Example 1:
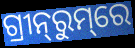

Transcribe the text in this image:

ଗ୍ରୀନ୍‌ରୁମ୍‌ରେ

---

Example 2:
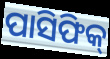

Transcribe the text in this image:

ପାସିଫିକ୍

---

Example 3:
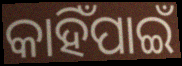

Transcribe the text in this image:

କାହିଁପାଇଁ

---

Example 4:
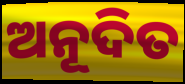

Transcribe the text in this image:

ଅନୂଦିତ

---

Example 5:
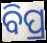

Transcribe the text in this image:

ବିପ୍ର